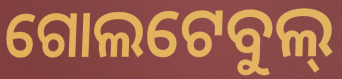
ଗୋଲଟେବୁଲ୍